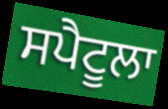
ਸਪੈਟੂਲਾ